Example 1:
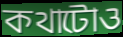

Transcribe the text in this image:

কথাটোও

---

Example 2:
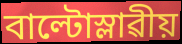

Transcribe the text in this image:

বাল্টোস্লাৱীয়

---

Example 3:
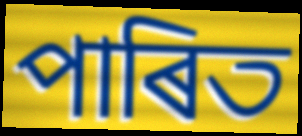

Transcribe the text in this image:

পাৰিত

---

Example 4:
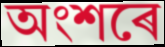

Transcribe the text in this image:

অংশৰে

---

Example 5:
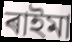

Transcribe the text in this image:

ৰাইমা